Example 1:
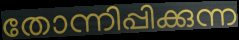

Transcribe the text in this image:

തോന്നിപ്പിക്കുന്ന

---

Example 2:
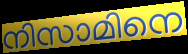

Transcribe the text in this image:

നിസാമിനെ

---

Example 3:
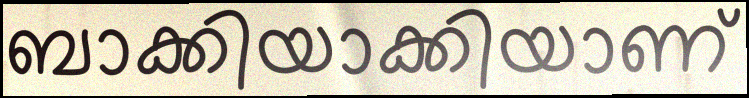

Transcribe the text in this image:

ബാക്കിയാക്കിയാണ്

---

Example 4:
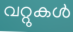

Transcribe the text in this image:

വറ്റുകൾ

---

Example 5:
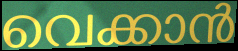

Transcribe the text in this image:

വെക്കാൻ